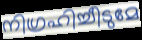
നിഗ്രഹിച്ചീടുമേ